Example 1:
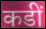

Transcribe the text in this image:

कडीं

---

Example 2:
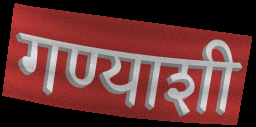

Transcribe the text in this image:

गण्याशी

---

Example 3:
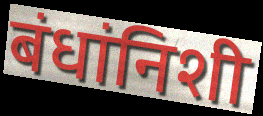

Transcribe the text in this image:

बंधांनिशी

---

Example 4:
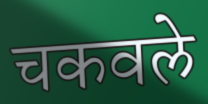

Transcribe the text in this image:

चकवले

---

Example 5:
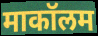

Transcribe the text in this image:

माकॉलम